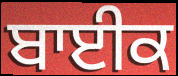
ਬਾਈਕ